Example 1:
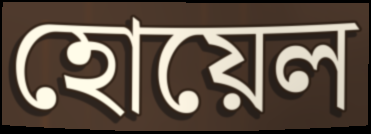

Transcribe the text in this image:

হোয়েল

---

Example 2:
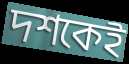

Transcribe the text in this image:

দশকেই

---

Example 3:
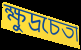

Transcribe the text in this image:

ক্ষুদ্রচেতা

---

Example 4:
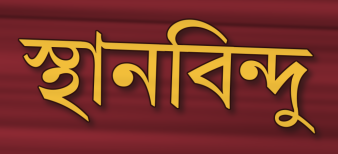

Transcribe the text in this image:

স্থানবিন্দু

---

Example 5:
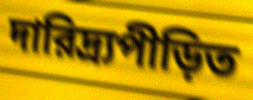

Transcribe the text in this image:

দারিদ্র্যপীড়িত